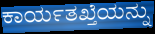
ಕಾರ್ಯತಖ್ತೆಯನ್ನು